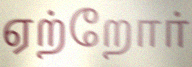
ஏற்றோர்